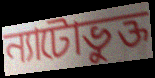
ন্যাটোভুক্ত